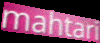
mahtari